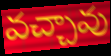
వచ్చావు